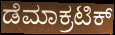
ಡೆಮಾಕ್ರಟಿಕ್